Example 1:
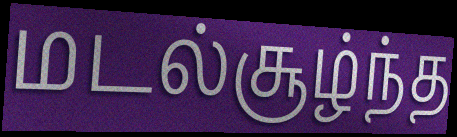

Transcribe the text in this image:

மடல்சூழ்ந்த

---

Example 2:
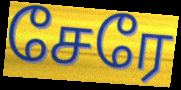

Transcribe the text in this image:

சேரே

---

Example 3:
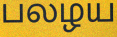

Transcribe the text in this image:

பலழய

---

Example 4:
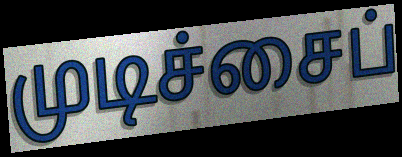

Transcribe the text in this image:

முடிச்சைப்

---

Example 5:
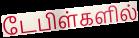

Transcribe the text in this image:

டேபிள்களில்